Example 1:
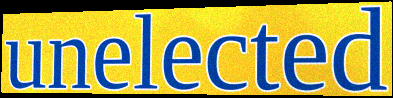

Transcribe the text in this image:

unelected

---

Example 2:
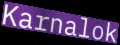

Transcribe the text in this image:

Karnalok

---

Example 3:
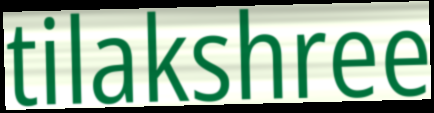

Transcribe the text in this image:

tilakshree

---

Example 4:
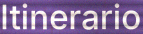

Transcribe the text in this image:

Itinerario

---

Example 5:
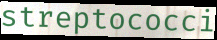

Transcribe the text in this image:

streptococci